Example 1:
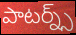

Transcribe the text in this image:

పాటర్న్స్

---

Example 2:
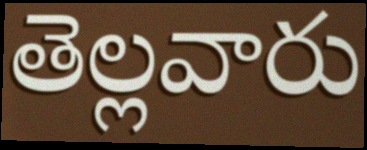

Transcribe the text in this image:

తెల్లవారు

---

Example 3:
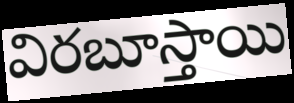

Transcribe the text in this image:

విరబూస్తాయి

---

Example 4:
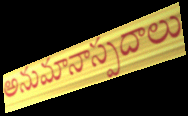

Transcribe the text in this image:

అనుమానాస్పదాలు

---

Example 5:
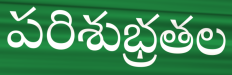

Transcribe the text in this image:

పరిశుభ్రతల